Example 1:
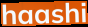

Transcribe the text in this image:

haashi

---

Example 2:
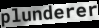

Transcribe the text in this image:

plunderer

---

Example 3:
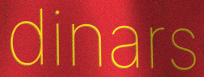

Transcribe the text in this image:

dinars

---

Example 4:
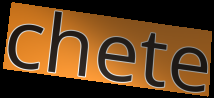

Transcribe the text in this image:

chete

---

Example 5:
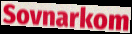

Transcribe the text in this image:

Sovnarkom